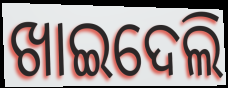
ଖାଇଦେଲି